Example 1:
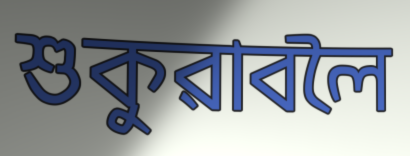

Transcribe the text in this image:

শুকুৱাবলৈ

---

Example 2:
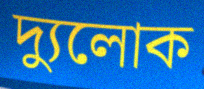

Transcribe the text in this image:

দ্যুলোক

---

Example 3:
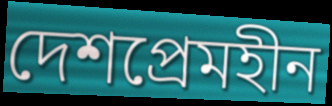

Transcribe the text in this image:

দেশপ্ৰেমহীন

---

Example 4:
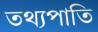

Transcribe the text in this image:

তথ্যপাতি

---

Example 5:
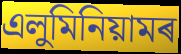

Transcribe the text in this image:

এলুমিনিয়ামৰ